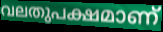
വലതുപക്ഷമാണ്